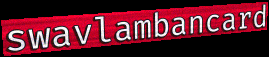
swavlambancard